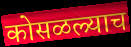
कोसळल्याच